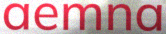
aemna